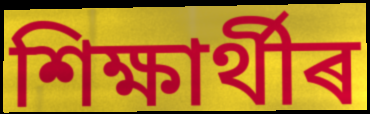
শিক্ষাৰ্থীৰ